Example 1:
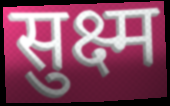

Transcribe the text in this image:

सुक्ष्म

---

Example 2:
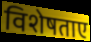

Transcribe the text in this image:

विशेषताए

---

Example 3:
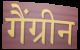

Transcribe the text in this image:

गैंग्रीन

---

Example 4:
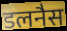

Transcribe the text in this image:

डलनैस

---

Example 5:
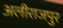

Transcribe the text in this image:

अलीराजपुर